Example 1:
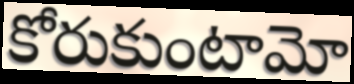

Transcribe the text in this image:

కోరుకుంటామో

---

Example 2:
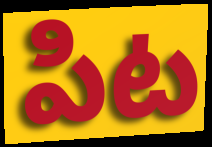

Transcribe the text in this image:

పిట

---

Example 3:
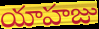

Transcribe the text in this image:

యాహజు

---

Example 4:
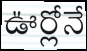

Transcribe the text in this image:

ఊర్లోనే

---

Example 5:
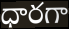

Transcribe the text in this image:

ధారగా